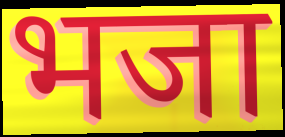
भजा